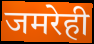
जमरेही